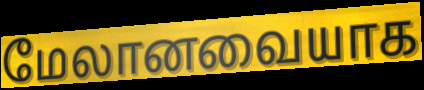
மேலானவையாக